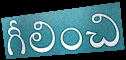
గీలించి